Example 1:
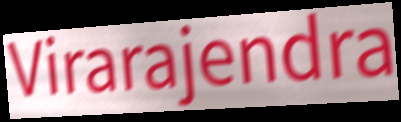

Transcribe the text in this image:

Virarajendra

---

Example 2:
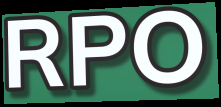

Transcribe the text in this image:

RPO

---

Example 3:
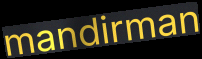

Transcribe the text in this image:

mandirman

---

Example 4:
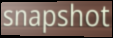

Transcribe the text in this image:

snapshot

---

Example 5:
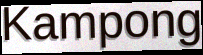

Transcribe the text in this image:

Kampong